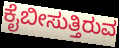
ಕೈಬೀಸುತ್ತಿರುವ